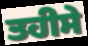
ਤਹੀਸੇ